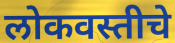
लोकवस्तीचे